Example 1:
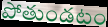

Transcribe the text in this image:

పోతుండటం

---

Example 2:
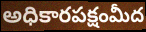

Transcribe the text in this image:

అధికారపక్షంమీద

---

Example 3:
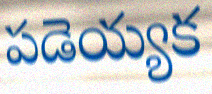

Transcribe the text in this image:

పడెయ్యక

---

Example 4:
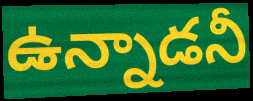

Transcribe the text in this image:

ఉన్నాడనీ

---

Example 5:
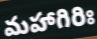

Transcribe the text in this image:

మహాగిరిః